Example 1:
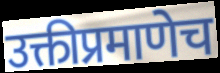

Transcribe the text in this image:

उक्तीप्रमाणेच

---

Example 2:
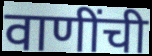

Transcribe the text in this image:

वाणींची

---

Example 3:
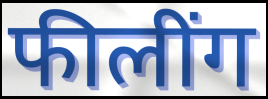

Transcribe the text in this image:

फीलींग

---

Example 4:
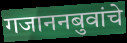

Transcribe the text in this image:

गजाननबुवांचे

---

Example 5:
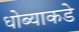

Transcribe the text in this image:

धोब्याकडे